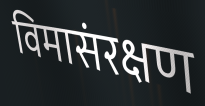
विमासंरक्षण